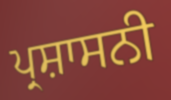
ਪ੍ਰਸ਼ਾਸਨੀ